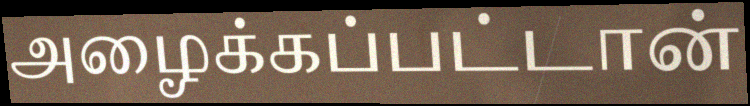
அழைக்கப்பட்டான்